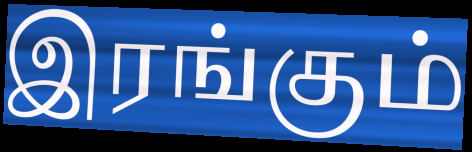
இரங்கும்